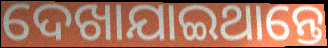
ଦେଖାଯାଇଥାନ୍ତେ